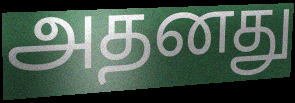
அதனது